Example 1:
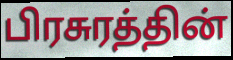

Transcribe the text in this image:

பிரசுரத்தின்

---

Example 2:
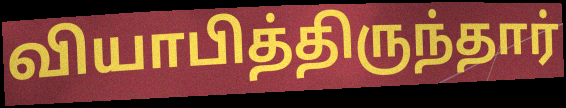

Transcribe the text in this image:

வியாபித்திருந்தார்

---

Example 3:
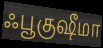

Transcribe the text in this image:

ஃபூகுஷீமா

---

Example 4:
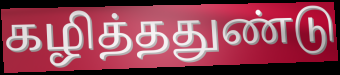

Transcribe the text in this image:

கழித்ததுண்டு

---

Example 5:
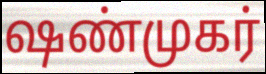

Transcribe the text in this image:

ஷண்முகர்